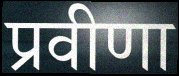
प्रवीणा